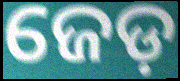
ଜେଡ଼